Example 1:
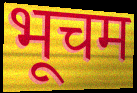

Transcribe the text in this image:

भूचम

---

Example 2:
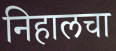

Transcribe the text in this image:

निहालचा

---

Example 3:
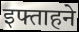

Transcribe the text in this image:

इफ्ताहने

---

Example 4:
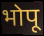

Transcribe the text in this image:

भोपू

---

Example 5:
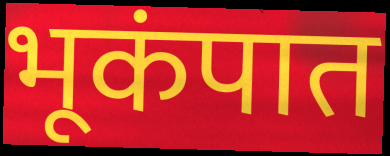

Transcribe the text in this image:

भूकंपात